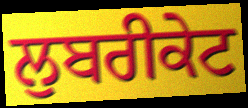
ਲੁਬਰੀਕੇਟ